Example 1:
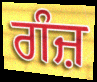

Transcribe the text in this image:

ਗੰਜ਼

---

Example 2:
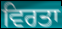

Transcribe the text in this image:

ਵਿਰਤਾ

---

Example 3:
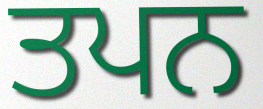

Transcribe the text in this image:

ਤਪਨ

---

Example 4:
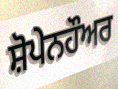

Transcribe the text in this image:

ਸ਼ੋਪੇਨਹੌਅਰ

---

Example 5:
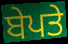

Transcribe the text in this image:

ਬੇਪਤੇ